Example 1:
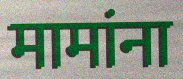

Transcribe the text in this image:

मामांना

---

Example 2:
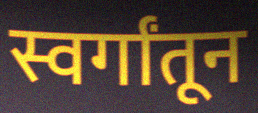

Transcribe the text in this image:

स्वर्गांतून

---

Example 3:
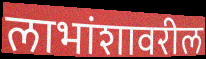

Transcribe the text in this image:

लाभांशावरील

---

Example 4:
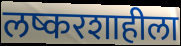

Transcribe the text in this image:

लष्करशाहीला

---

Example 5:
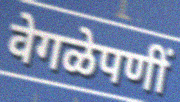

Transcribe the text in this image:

वेगळेपणीं